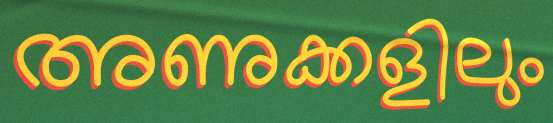
അണുക്കളിലും